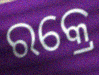
ରକ୍ରେ